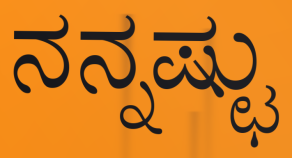
ನನ್ನಷ್ಟು